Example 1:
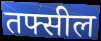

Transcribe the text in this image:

तफ्सील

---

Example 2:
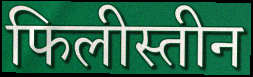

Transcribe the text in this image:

फिलीस्तीन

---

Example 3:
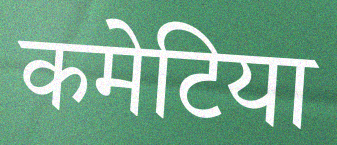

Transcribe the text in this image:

कमेटिया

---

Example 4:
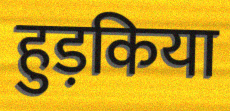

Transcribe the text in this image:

हुड़किया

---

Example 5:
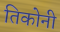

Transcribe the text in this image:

तिकोनी